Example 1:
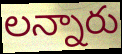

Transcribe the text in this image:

లన్నారు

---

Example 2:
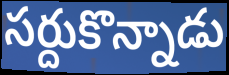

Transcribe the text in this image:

సర్దుకొన్నాడు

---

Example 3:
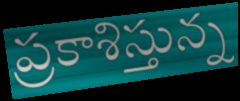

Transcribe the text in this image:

ప్రకాశిస్తున్న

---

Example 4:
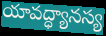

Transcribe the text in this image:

యావద్ధ్యానస్య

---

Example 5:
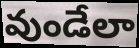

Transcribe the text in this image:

వుండేలా